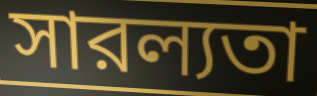
সারল্যতা